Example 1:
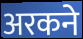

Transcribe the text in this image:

अरकने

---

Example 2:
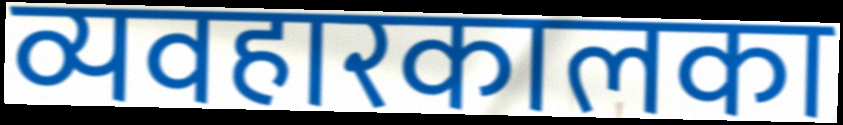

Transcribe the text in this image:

व्यवहारकालका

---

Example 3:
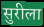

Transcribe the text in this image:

सुरीला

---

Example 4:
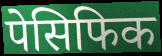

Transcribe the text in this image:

पेसिफिक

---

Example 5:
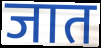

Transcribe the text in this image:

जात